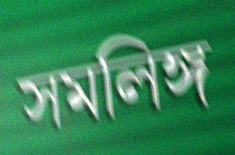
সমলিঙ্গ